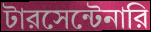
টারসেন্টেনারি